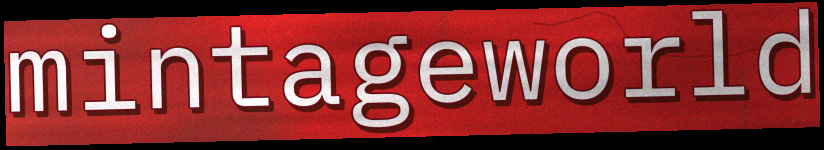
mintageworld